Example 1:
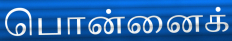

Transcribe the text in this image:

பொன்னைக்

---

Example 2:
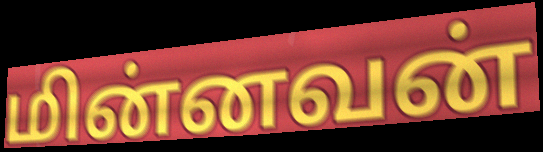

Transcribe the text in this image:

மின்னவன்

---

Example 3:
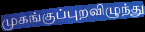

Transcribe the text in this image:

முகங்குப்புறவிழுந்து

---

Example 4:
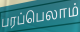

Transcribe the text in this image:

பரப்பெலாம்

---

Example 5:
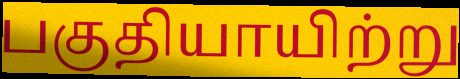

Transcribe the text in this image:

பகுதியாயிற்று